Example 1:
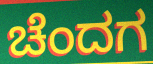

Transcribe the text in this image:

ಚೆಂದಗ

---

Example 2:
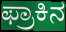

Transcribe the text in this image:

ಫ್ರಾಕಿನ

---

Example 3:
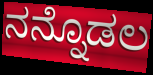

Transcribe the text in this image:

ನನ್ನೊಡಲ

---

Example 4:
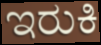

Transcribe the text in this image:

ಇರುಕಿ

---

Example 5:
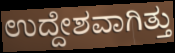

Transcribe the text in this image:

ಉದ್ದೇಶವಾಗಿತ್ತು